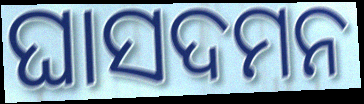
ଘାସଦମନ